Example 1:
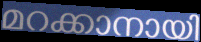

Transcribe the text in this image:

മറക്കാനായി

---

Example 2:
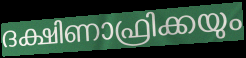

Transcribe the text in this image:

ദക്ഷിണാഫ്രിക്കയും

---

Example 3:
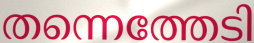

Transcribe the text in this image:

തന്നെത്തേടി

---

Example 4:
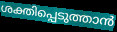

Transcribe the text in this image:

ശക്തിപ്പെടുത്താൻ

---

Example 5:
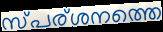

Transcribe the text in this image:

സ്പര്ശനത്തെ